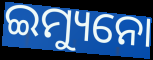
ଇମ୍ୟୁନୋ